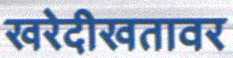
खरेदीखतावर